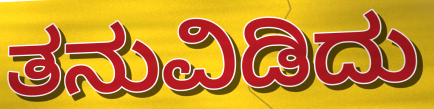
ತನುವಿಡಿದು